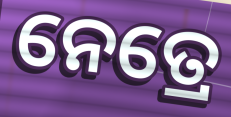
ନେତ୍ରେ